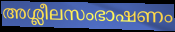
അശ്ലീലസംഭാഷണം